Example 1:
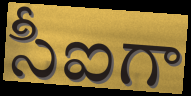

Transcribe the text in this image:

సీఐగా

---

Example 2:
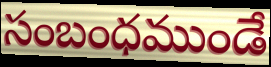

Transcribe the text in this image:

సంబంధముండే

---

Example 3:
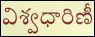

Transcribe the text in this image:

విశ్వధారిణీ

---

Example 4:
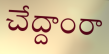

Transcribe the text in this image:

చేద్దాంరా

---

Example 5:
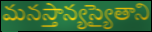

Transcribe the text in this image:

మనస్తాన్యస్యైతాని